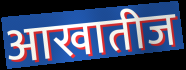
आखातीज